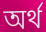
অৰ্থ